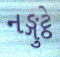
નઙ્ગુટ્ઠે